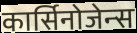
कार्सिनोजेन्स